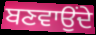
ਬਣਵਾਉਂਦੇ